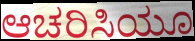
ಆಚರಿಸಿಯೂ